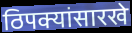
ठिपक्यांसारखे